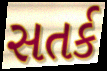
સતર્ક